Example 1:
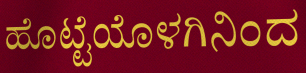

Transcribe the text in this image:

ಹೊಟ್ಟೆಯೊಳಗಿನಿಂದ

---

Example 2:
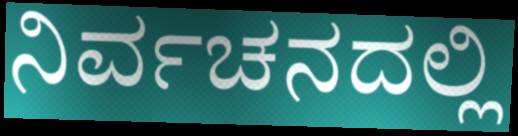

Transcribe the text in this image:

ನಿರ್ವಚನದಲ್ಲಿ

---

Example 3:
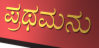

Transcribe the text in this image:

ಪ್ರಥಮನು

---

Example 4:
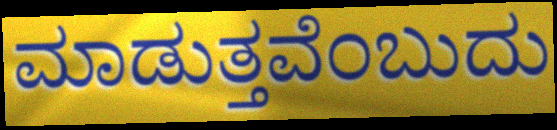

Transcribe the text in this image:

ಮಾಡುತ್ತವೆಂಬುದು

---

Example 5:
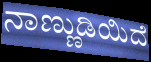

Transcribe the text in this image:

ನಾಣ್ಣುಡಿಯಿದೆ